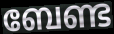
ബേണ്ട